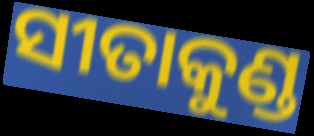
ସୀତାକୁଣ୍ଡ